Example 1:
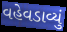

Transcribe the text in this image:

વહેવડાવ્યું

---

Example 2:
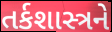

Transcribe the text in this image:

તર્કશાસ્ત્રને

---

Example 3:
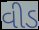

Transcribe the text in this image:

વીડ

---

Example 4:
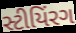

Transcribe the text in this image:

સ્ટીયિંરગ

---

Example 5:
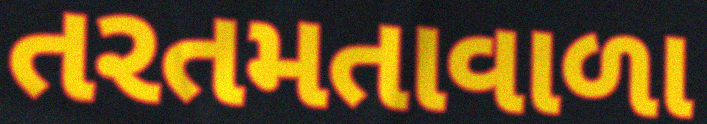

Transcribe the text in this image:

તરતમતાવાળા